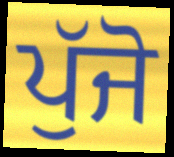
ਪੁੱਜੋ